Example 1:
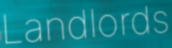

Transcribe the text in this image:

Landlords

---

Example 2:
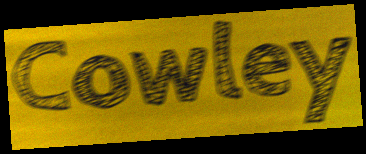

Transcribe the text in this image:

Cowley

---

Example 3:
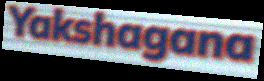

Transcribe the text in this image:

Yakshagana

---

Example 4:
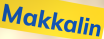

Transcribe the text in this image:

Makkalin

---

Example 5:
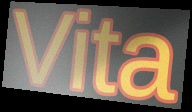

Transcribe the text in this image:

Vita